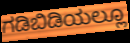
ಗಡಿಬಿಡಿಯಲ್ಲೂ